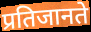
प्रतिजानते